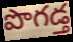
పొగడ్త